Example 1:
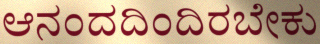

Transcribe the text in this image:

ಆನಂದದಿಂದಿರಬೇಕು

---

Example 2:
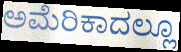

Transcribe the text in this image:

ಅಮೆರಿಕಾದಲ್ಲೂ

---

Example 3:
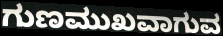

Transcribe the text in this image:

ಗುಣಮುಖವಾಗುವ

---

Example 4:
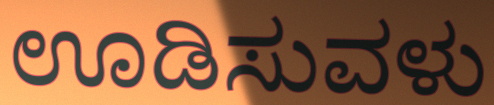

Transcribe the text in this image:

ಊಡಿಸುವಳು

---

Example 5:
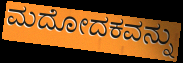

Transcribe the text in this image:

ಮದೋದಕವನ್ನು